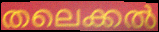
തലെക്കൽ